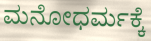
ಮನೋಧರ್ಮಕ್ಕೆ